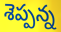
శెప్పన్న